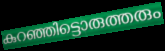
കുറഞ്ഞിട്ടൊരുത്തരും